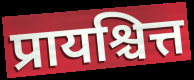
प्रायश्चित्त